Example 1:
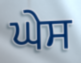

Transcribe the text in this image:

ਘੇਸ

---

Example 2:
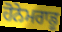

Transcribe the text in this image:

ਹੋਨੇਮਰਾਡੂ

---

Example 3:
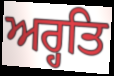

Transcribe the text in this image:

ਅਰ੍ਹਤਿ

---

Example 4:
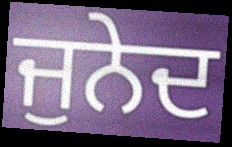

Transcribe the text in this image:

ਜੁਨੇਦ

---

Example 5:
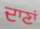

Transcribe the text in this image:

ਦਾਣਾਂ